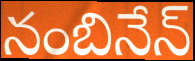
నంబినేన్